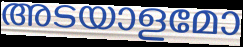
അടയാളമോ